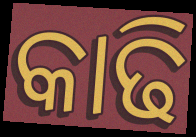
କାଢି